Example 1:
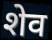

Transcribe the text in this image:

शेव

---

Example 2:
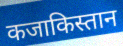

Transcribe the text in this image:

कजाकिस्तान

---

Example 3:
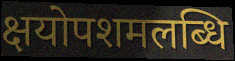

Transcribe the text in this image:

क्षयोपशमलब्धि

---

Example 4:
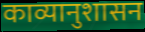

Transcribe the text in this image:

काव्यानुशासन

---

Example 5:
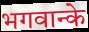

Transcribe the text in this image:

भगवान्के